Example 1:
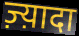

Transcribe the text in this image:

ज़्य़ादा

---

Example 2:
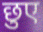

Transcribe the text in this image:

छुए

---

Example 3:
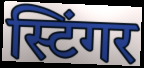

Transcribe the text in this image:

स्टिंगर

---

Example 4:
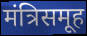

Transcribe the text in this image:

मंत्रिसमूह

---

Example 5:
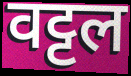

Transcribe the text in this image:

वट्टल